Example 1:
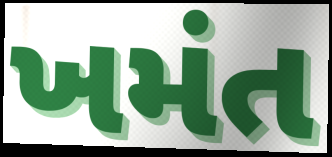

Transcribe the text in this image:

ખમંત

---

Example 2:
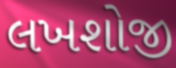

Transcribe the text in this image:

લખશોજી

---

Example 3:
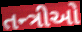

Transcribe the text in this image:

તન્ત્રીઓ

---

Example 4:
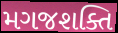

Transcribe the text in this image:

મગજશક્તિ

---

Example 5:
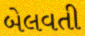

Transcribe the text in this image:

બેલવતી